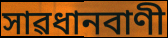
সাৱধানবাণী